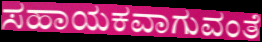
ಸಹಾಯಕವಾಗುವಂತೆ